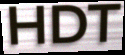
HDT